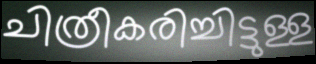
ചിത്രീകരിച്ചിട്ടുള്ള